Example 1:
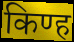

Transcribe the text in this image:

किण्ह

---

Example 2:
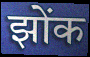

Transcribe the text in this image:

झोंक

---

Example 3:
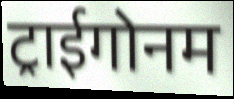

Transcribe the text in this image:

ट्राईगोनम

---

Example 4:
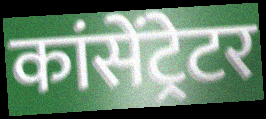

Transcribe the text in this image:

कांसेंट्रेटर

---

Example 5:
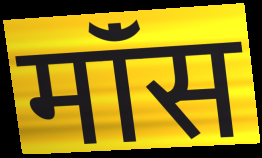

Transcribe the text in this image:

मॉंस